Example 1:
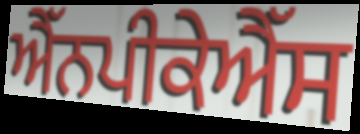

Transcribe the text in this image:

ਐੱਨਪੀਕੇਐੱਸ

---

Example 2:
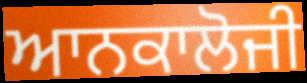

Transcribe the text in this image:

ਆਨਕਾਲੋਜੀ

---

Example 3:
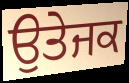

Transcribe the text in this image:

ਉਤੇਜਕ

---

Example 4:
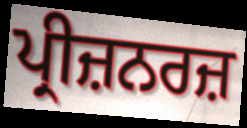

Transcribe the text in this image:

ਪ੍ਰੀਜ਼ਨਰਜ਼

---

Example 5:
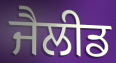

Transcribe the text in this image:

ਜੈਲੀਡ